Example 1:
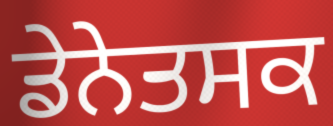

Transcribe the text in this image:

ਡੇਨੇਤਸਕ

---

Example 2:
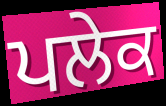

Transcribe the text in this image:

ਪਲੇਕ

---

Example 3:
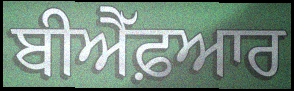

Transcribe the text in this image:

ਬੀਐੱਫ਼ਆਰ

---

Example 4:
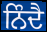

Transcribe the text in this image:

ਨਿੰਦੈ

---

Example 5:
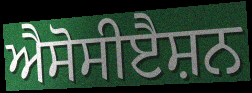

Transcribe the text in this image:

ਐਸੋਸੀੲੈਸ਼ਨ